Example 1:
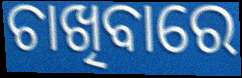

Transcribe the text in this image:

ଚାଖିବାରେ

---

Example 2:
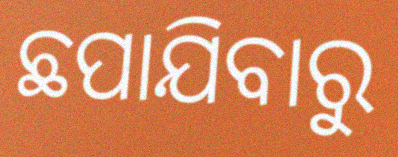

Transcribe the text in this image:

ଛପାଯିବାରୁ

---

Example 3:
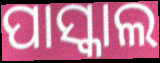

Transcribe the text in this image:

ପାସ୍କାଲ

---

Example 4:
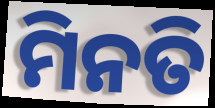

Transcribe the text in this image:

ମିନତି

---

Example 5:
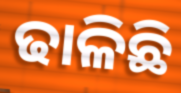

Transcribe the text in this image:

ଢାଳିଛି